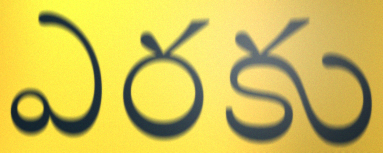
ఎరకు